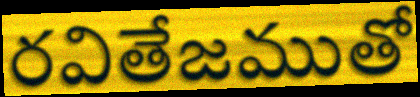
రవితేజముతో